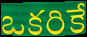
ఒకరికే